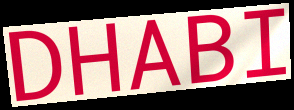
DHABI